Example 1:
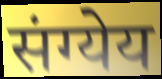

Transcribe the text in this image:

संग्येय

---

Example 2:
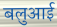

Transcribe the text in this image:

बलुआई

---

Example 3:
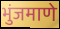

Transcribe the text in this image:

भुंजमाणे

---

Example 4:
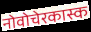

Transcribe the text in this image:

नोवोचेरकास्क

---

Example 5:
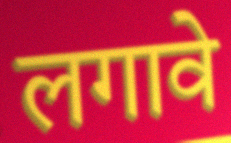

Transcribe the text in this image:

लगावे